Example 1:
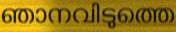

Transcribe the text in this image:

ഞാനവിടുത്തെ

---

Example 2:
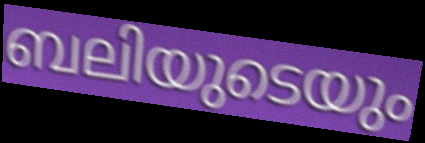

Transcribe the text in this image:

ബലിയുടെയും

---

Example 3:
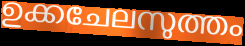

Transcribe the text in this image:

ഉക്കചേലസുത്തം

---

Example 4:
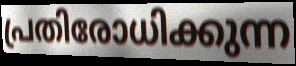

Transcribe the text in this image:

പ്രതിരോധിക്കുന്ന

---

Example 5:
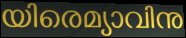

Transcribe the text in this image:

യിരെമ്യാവിനു